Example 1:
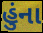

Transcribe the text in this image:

હુંના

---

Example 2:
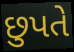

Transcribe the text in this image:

છુપતે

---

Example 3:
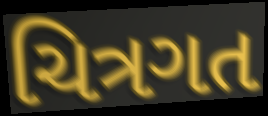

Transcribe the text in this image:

ચિત્રગત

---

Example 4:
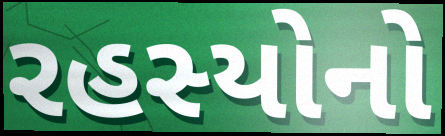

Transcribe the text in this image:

રહસ્યોનો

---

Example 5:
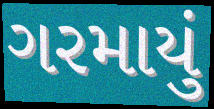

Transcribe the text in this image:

ગરમાયું